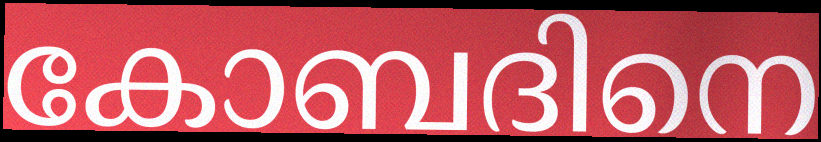
കോബദിനെ